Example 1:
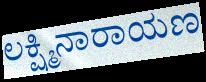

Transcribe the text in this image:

ಲಕ್ಷ್ಮಿನಾರಾಯಣ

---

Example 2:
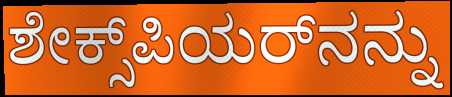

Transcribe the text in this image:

ಶೇಕ್ಸ್‌ಪಿಯರ್‌ನನ್ನು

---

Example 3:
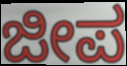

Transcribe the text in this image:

ಜೀಪ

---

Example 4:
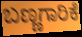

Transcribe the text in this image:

ಬಣ್ಣಗಾರಿಕೆ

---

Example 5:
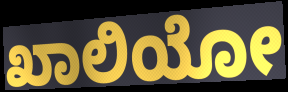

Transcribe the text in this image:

ಖಾಲಿಯೋ